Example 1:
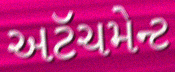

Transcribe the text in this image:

અટૅચમેન્ટ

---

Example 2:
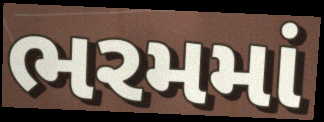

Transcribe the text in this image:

ભરમમાં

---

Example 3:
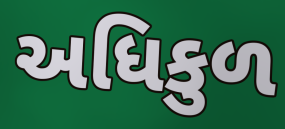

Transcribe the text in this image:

અધિકુળ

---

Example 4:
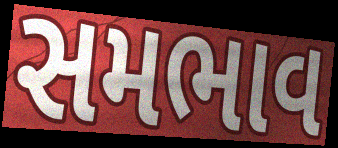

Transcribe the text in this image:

સમભાવ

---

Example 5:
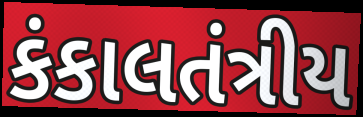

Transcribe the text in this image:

કંકાલતંત્રીય